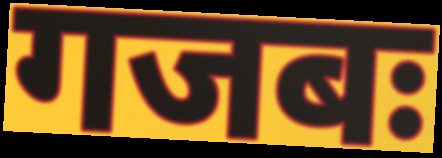
गजबः